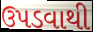
ઉપડવાથી